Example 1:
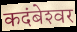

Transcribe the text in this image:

कदंबेश्वर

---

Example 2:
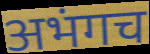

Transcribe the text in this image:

अभंगच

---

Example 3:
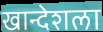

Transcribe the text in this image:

खान्देशला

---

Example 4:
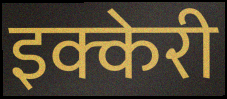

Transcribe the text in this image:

इक्केरी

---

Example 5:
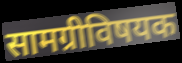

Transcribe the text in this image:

सामग्रीविषयक